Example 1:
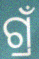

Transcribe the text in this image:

ଗ୍ରଁ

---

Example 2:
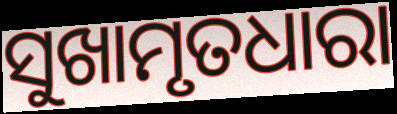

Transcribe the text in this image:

ସୁଖାମୃତଧାରା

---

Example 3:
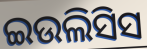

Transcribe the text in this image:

ଇଉଲିସିସ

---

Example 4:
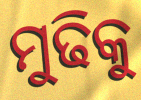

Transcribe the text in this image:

ମୁଢିକୁ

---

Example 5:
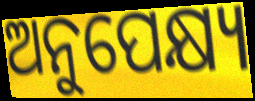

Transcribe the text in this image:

ଅନୁପେକ୍ଷ୍ୟ